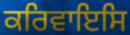
ਕਰਿਵਾਇਸਿ